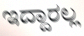
ಇದ್ದಾರಲ್ಲ